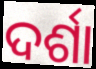
ଦର୍ଶା